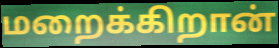
மறைக்கிறான்